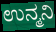
ಉನ್ಮನಿ